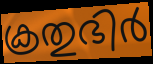
ക്രതുഭിർ